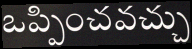
ఒప్పించవచ్చు